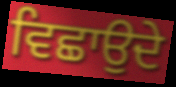
ਵਿਛਾਉਦੇ